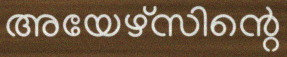
അയേഴ്സിന്റെ